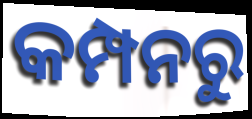
କମ୍ପନରୁ